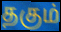
தகும்